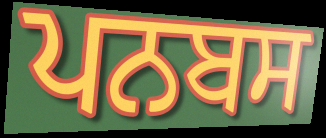
ਪਨਬਸ